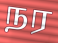
நர